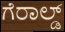
ಗೆರಾಲ್ಡ್